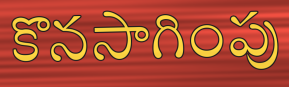
కొనసాగింపు